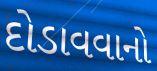
દોડાવવાનો